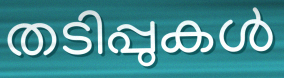
തടിപ്പുകൾ